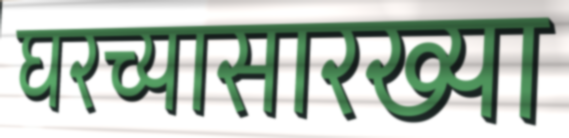
घरच्यासारख्या